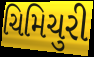
ચિમિચુરી